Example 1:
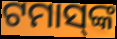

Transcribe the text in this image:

ଟମାସ୍‌ଙ୍କ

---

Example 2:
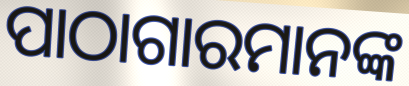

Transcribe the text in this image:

ପାଠାଗାରମାନଙ୍କ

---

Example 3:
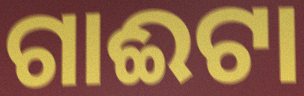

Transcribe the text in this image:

ଗାଈଟା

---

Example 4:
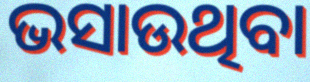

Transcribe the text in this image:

ଭସାଉଥିବା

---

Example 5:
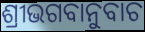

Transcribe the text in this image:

ଶ୍ରୀଭଗବାନୁବାଚ